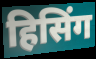
हिसिंग